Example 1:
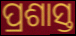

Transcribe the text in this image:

ପ୍ରଶାସ୍ତ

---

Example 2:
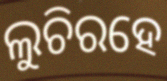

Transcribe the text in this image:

ଲୁଚିରହେ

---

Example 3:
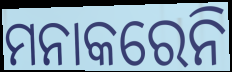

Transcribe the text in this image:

ମନାକରେନି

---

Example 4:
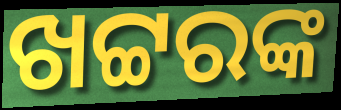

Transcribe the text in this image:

ଖଟ୍ଟରଙ୍କ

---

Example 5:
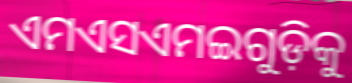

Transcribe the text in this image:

ଏମଏସଏମଇଗୁଡ଼ିକୁ